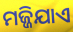
ମଜ୍ଜିଯାଏ